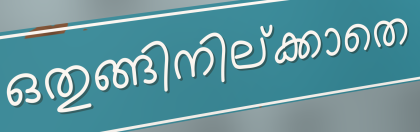
ഒതുങ്ങിനില്ക്കാതെ